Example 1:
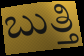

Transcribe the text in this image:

ಬುತ್ತಿ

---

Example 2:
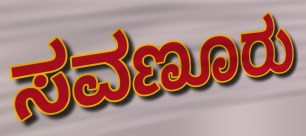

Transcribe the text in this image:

ಸವಣೂರು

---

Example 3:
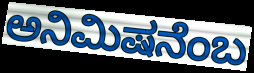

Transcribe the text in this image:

ಅನಿಮಿಷನೆಂಬ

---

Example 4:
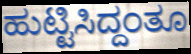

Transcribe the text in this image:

ಹುಟ್ಟಿಸಿದ್ದಂತೂ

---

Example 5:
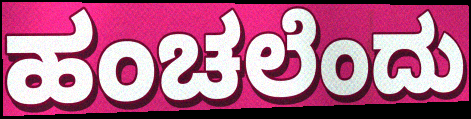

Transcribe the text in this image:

ಹಂಚಲೆಂದು